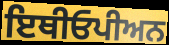
ਇਥੀਓਪੀਅਨ